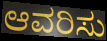
ಆವರಿಸು